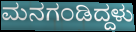
ಮನಗಂಡಿದ್ದಳು